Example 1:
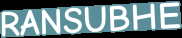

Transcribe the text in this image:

RANSUBHE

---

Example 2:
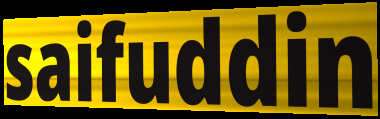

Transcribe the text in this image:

saifuddin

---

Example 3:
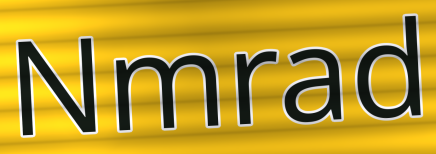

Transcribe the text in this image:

Nmrad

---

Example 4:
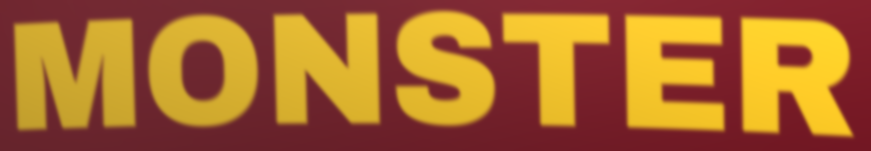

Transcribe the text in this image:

MONSTER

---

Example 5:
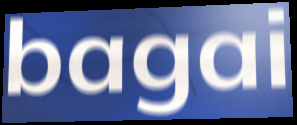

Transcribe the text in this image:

bagai